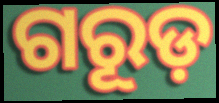
ଗରୂଡ଼